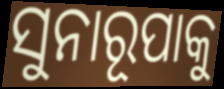
ସୁନାରୂପାକୁ